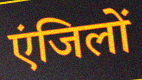
एंजिलों